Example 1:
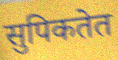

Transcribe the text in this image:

सुपिकतेत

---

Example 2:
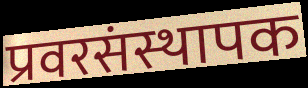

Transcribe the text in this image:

प्रवरसंस्थापक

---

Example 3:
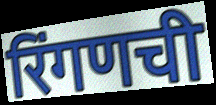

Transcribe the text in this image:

रिंगणची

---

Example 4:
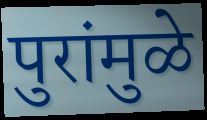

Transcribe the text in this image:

पुरांमुळे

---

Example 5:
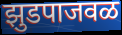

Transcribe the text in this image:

झुडपाजवळ